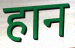
हान